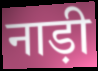
नाड़ी